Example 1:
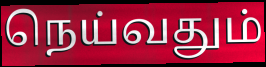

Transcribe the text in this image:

நெய்வதும்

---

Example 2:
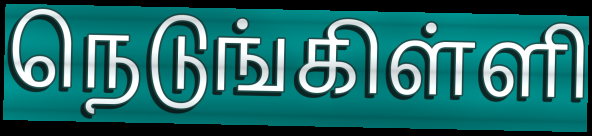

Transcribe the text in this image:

நெடுங்கிள்ளி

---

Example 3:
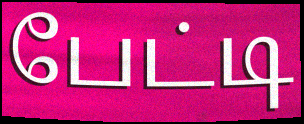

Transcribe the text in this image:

பேட்டி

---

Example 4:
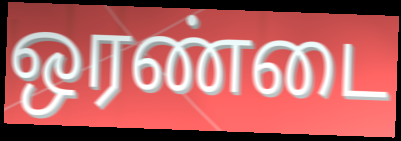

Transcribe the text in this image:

ஒரண்டை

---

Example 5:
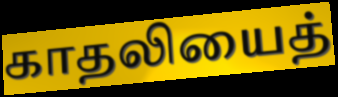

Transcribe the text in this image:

காதலியைத்